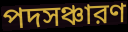
পদসঞ্চারণ